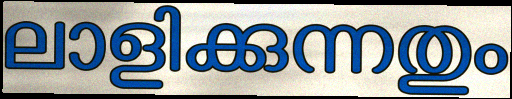
ലാളിക്കുന്നതും